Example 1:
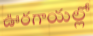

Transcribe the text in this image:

ఊరగాయల్లో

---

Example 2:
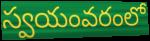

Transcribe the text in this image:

స్వయంవరంలో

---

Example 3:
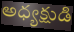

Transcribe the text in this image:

అధ్యక్షుడి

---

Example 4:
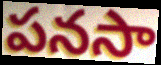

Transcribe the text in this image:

పనసా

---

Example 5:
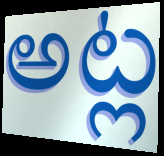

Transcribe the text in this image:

అట్ల